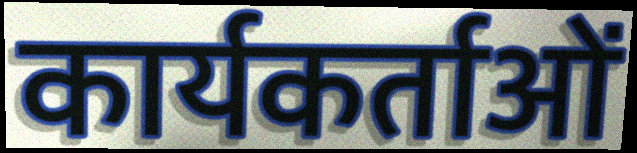
कार्यकर्ताओं